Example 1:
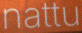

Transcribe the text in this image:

nattu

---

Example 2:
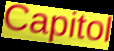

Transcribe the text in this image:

Capitol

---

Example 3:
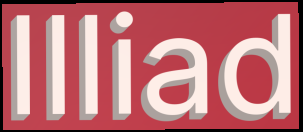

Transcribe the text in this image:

Illiad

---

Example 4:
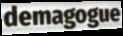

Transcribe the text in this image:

demagogue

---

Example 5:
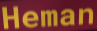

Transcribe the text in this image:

Heman